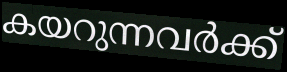
കയറുന്നവർക്ക്